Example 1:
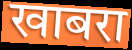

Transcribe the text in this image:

खाबरा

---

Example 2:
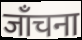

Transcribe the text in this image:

जाँचना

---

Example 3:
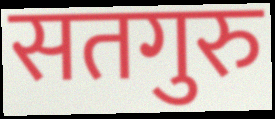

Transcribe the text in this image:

सतगुरु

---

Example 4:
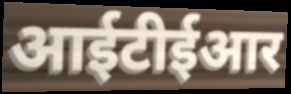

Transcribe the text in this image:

आईटीईआर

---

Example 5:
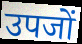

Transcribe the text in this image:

उपजों